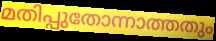
മതിപ്പുതോന്നാത്തതും